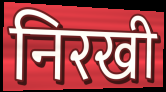
निरखी